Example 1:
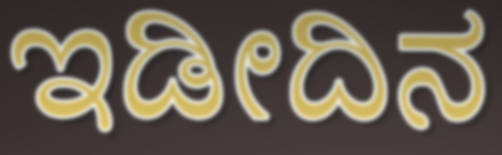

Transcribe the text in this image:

ಇಡೀದಿನ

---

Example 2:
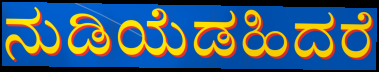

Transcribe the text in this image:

ನುಡಿಯೆಡಹಿದರೆ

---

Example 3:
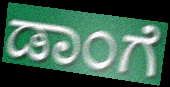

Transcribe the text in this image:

ಡಾಂಗೆ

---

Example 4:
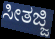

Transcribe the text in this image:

ಸೀತಜ್ಜಿ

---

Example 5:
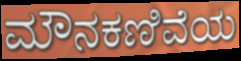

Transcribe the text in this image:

ಮೌನಕಣಿವೆಯ